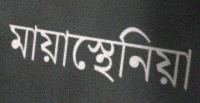
মায়াস্থেনিয়া